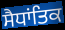
ਸੈਧਾਂਤਿਕ